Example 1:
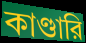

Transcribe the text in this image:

কাণ্ডারি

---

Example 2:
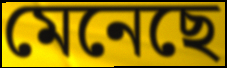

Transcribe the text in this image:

মেনেছে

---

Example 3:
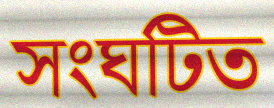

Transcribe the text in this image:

সংঘটিত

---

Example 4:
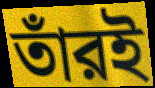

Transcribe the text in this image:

তাঁরই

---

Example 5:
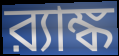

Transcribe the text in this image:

র‍্যাঙ্ক